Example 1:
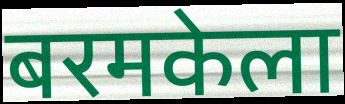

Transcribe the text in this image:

बरमकेला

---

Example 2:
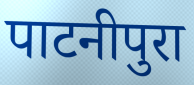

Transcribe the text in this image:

पाटनीपुरा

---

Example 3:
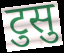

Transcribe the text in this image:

टुसु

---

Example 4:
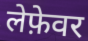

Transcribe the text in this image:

लेफ़ेवर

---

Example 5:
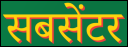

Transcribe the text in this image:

सबसेंटर